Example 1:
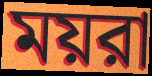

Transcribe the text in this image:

ময়রা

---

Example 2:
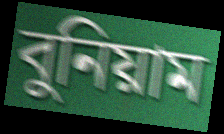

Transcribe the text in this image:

বুনিয়াম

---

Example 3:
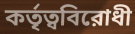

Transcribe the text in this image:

কর্তৃত্ববিরোধী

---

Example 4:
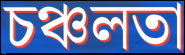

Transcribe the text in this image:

চঞ্চলতা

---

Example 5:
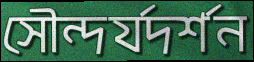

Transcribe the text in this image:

সৌন্দর্যদর্শন